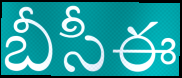
బీసీఈ